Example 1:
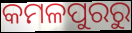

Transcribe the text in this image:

କମଳପୁରରୁ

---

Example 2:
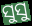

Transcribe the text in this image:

ସୁସୁ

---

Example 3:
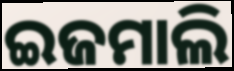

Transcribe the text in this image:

ଇଜମାଲି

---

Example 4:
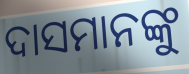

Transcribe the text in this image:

ଦାସମାନଙ୍କୁ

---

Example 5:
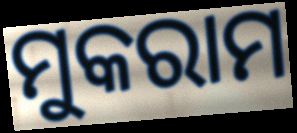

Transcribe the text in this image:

ମୁକରାମ